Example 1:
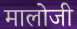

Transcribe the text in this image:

मालोजी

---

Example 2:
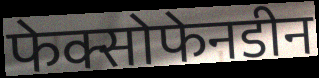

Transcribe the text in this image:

फेक्सोफेनडीन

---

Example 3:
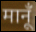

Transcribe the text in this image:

मानूँ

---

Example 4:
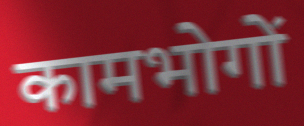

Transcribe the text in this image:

कामभोगों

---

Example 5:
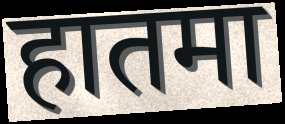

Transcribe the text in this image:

हातमा